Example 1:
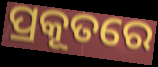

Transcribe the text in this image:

ପ୍ରକୂତରେ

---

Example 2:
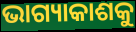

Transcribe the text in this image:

ଭାଗ୍ୟାକାଶକୁ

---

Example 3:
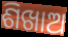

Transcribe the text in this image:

ଶିଖାଅ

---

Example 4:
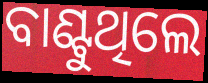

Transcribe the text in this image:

ବାଣ୍ଟୁଥିଲେ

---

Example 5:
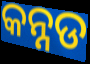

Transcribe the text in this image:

କନ୍ନଡ